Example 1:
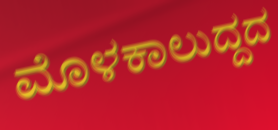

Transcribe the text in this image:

ಮೊಳಕಾಲುದ್ದದ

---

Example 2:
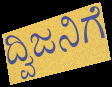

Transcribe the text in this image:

ದ್ವಿಜನಿಗೆ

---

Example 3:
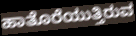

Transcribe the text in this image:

ಹಾತೊರೆಯುತ್ತಿರುವ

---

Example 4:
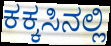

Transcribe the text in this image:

ಕಕ್ಕಸಿನಲ್ಲಿ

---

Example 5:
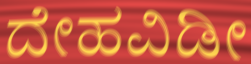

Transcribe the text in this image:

ದೇಹವಿಡೀ